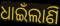
ଧାଇଁଲାଣି